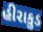
હીરાકુડ